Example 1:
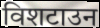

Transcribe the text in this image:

विशटाउन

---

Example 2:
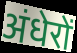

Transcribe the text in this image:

अंधेरों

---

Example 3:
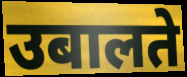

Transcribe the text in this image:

उबालते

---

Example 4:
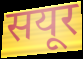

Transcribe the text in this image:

सयूर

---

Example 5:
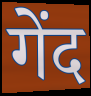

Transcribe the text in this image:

गेंद